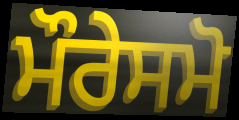
ਮੌਰੇਸਮੋ